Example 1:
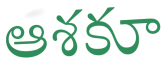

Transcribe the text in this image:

ఆశకూ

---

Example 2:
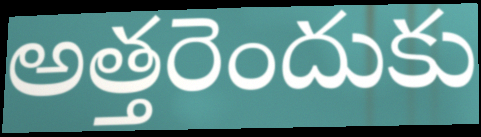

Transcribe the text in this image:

అత్తరెందుకు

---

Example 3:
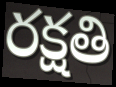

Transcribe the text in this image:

రక్షతి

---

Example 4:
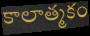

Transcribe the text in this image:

కాలాత్మకం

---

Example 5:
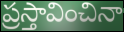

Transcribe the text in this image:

ప్రస్తావించినా